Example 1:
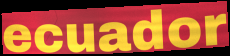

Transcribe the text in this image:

ecuador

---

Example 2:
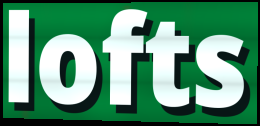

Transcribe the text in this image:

lofts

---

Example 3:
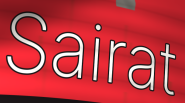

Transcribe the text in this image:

Sairat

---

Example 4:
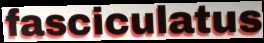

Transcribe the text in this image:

fasciculatus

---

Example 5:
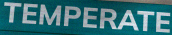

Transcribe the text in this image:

TEMPERATE